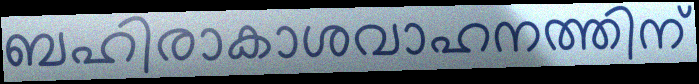
ബഹിരാകാശവാഹനത്തിന്